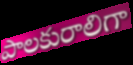
పాలకురాలిగా